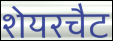
शेयरचैट